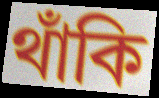
থাঁকি